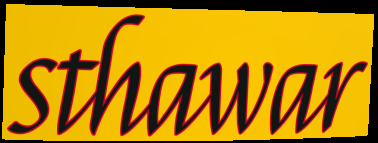
sthawar